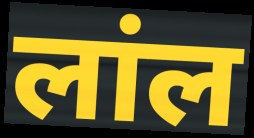
लांल